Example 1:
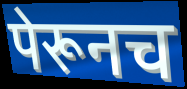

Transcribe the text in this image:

पेरूनच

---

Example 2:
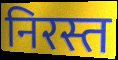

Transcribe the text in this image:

निरस्त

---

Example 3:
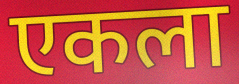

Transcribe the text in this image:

एकला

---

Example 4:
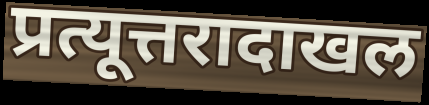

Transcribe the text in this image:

प्रत्यूत्तरादाखल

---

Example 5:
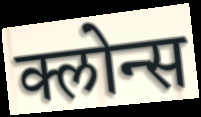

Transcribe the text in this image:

क्लोन्स